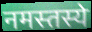
नमस्तस्ये